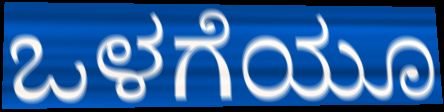
ಒಳಗೆಯೂ